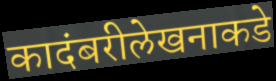
कादंबरीलेखनाकडे